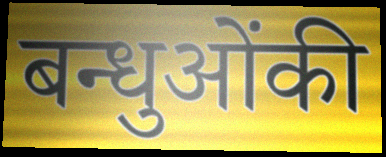
बन्धुओंकी